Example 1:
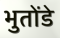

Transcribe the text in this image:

भुतोंडे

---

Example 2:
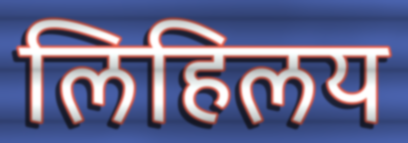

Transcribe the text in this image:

लिहिलय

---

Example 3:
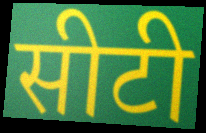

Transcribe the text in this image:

सीटी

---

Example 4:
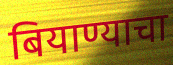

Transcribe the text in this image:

बियाण्याचा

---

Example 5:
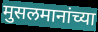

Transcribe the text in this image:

मुसलमानांच्या